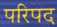
परिपद